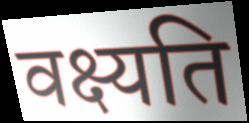
वक्ष्यति